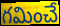
గమించే